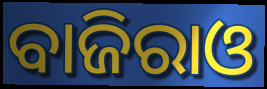
ବାଜିରାଓ